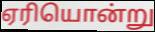
ஏரியொன்று